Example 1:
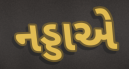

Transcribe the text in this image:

નડ્ડાએ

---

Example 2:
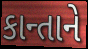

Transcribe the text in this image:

કાન્તાને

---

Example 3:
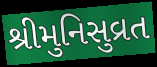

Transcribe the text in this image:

શ્રીમુનિસુવ્રત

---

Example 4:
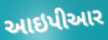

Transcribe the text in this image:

આઇપીઆર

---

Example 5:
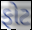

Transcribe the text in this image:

ફોટ